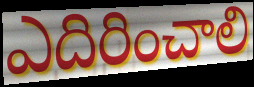
ఎదిరించాలి